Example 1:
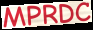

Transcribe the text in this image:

MPRDC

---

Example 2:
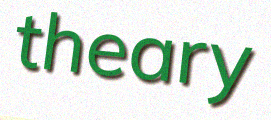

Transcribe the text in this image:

theary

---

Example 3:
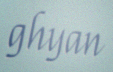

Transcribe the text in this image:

ghyan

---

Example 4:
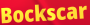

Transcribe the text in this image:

Bockscar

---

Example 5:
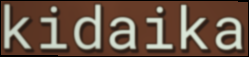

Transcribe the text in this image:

kidaika